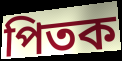
পিতক